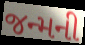
જન્મની